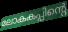
ലോകകപ്പിന്റെ